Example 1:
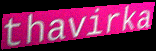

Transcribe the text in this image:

thavirka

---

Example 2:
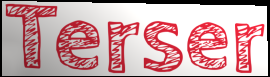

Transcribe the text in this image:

Terser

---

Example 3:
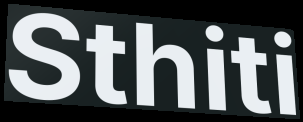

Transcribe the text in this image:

Sthiti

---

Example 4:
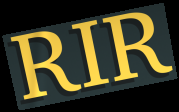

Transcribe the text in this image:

RIR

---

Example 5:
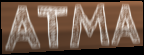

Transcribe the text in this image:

ATMA